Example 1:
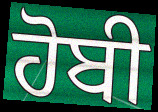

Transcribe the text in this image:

ਹੋਬੀ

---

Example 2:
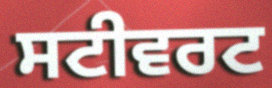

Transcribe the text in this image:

ਸਟੀਵਰਟ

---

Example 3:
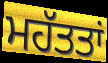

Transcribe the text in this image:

ਮਹੱਤਤਾਂ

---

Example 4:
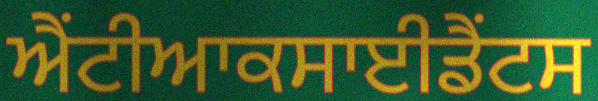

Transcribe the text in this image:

ਐਂਟੀਆਕਸਾਈਡੈਂਟਸ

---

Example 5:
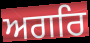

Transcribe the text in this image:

ਅਗਰਿ